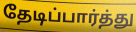
தேடிப்பார்த்து